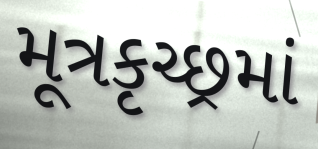
મૂત્રકૃચ્છ્રમાં